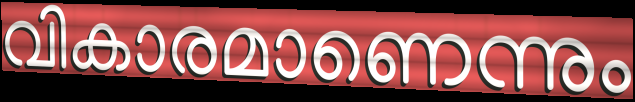
വികാരമാണെന്നും